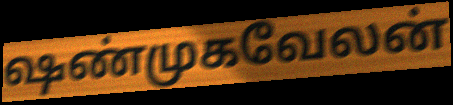
ஷண்முகவேலன்